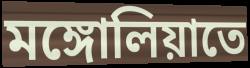
মঙ্গোলিয়াতে